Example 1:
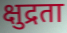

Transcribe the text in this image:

क्षुद्रता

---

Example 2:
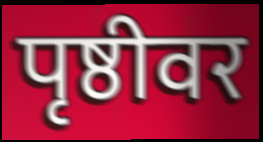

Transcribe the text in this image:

पृष्ठीवर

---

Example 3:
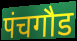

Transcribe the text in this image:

पंचगौड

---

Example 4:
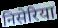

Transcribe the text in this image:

निसेरिया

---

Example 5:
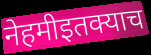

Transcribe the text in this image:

नेहमीइतक्याच